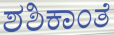
ಶಶಿಕಾಂತೆ